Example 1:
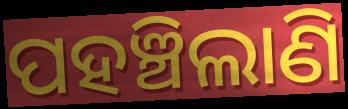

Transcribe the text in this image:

ପହଞ୍ଚିଲାଣି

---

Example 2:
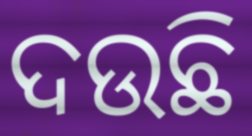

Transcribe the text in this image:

ଦଉଛି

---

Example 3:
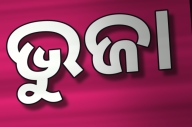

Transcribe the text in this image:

ଭୁଜା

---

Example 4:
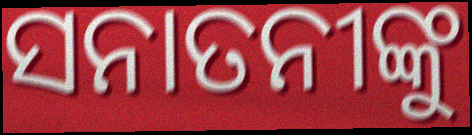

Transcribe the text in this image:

ସନାତନୀଙ୍କୁ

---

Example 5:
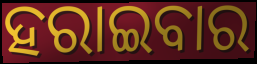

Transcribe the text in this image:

ହରାଇବାର